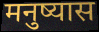
मनुष्यास